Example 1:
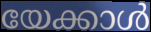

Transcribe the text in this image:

യേക്കാൾ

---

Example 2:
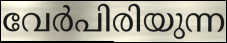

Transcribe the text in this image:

വേർപിരിയുന്ന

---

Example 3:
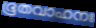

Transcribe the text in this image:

ഭൂതവാഹനഃ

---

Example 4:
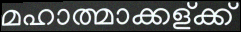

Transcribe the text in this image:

മഹാത്മാക്കള്ക്ക്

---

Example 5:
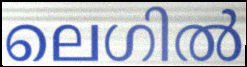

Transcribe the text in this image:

ലെഗിൽ